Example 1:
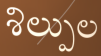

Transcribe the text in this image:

శిల్పుల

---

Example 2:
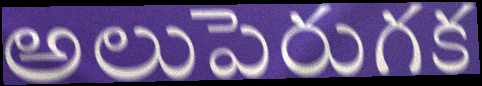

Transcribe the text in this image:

అలుపెరుగక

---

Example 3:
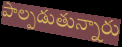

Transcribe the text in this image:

పాల్పడుతున్నారు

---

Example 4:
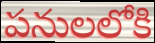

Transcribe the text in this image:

పనులలోకి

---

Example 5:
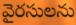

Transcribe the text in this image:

వైరసులను